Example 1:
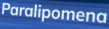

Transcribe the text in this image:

Paralipomena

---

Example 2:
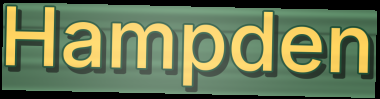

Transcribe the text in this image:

Hampden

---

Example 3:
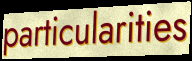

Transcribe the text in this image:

particularities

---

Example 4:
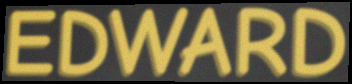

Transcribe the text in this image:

EDWARD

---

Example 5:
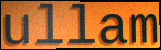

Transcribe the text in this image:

ullam